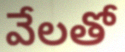
వేలతో